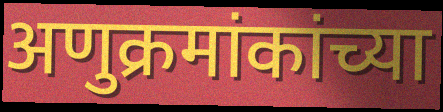
अणुक्रमांकांच्या